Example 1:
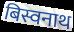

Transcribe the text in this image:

बिस्वनाथ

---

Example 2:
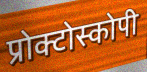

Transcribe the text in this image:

प्रोक्टोस्कोपी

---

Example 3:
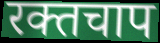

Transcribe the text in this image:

रक्तचाप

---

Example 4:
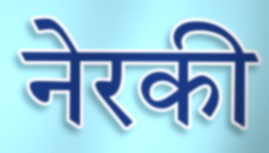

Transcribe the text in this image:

नेरकी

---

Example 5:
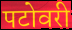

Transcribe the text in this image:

पटोवरी